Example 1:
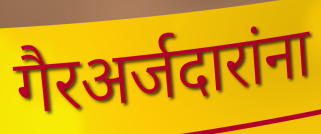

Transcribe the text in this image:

गैरअर्जदारांना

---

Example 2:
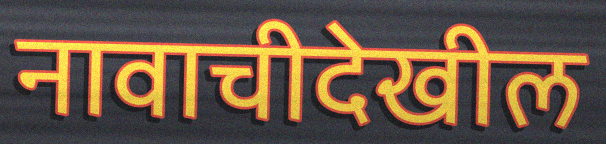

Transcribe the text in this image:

नावाचीदेखील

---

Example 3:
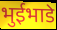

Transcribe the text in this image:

भुईभाडे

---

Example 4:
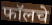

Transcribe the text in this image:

फॉलचे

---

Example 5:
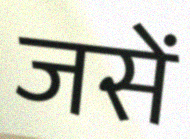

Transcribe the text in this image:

जसें